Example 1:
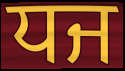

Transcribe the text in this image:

ਧਜ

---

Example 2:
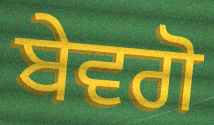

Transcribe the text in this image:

ਬੇਵਗੋ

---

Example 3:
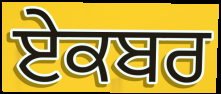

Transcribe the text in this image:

ਏਕਬਰ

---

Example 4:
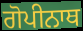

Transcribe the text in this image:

ਗੋਪੀਨਾਥ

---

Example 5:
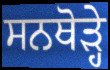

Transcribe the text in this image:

ਸਨਥੋੜ੍ਹੇ